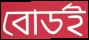
বোর্ডই